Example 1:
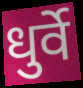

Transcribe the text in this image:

धुर्वे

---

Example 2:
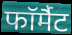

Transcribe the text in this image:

फॉर्मैट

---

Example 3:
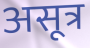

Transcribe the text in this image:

असूत्र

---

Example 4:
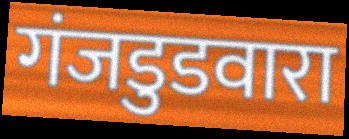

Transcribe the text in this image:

गंजडुडवारा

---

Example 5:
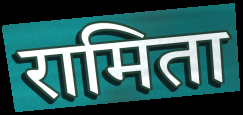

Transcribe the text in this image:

रामिता